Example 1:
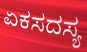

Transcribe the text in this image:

ಏಕಸದಸ್ಯ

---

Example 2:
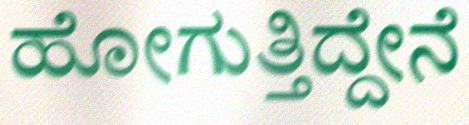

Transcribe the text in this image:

ಹೋಗುತ್ತಿದ್ದೇನೆ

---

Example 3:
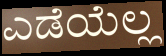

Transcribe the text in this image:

ಎಡೆಯೆಲ್ಲ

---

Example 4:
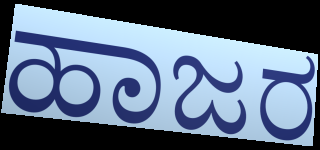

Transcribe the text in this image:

ಹಾಜರ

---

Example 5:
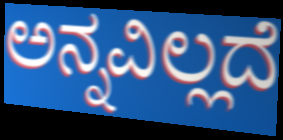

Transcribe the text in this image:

ಅನ್ನವಿಲ್ಲದೆ